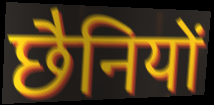
छैनियों